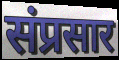
संप्रसार